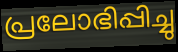
പ്രലോഭിപ്പിച്ചു